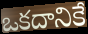
ఒకదానికే